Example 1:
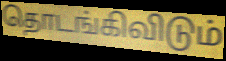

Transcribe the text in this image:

தொடங்கிவிடும்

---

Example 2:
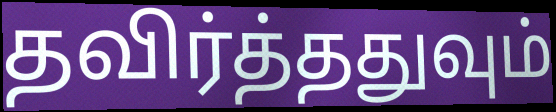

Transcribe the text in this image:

தவிர்த்ததுவும்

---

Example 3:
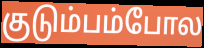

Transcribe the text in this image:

குடும்பம்போல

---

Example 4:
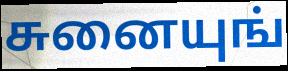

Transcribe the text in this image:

சுனையுங்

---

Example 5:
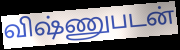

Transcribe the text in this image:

விஷ்ணுபடன்